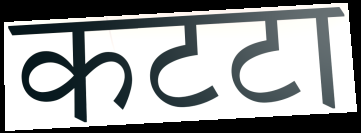
कटटा